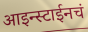
आइन्स्टाईनचं